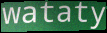
wataty